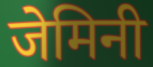
जेमिनी